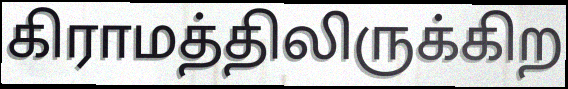
கிராமத்திலிருக்கிற